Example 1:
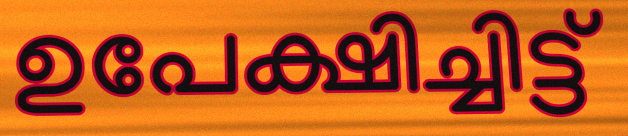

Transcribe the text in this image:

ഉപേക്ഷിച്ചിട്ട്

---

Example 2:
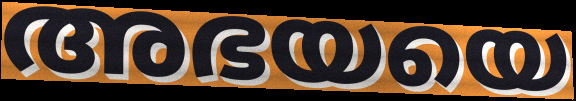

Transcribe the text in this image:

അഭയയെ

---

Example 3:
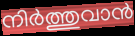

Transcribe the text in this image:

നിർത്തുവാൻ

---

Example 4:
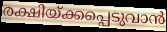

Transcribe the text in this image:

രക്ഷിയ്ക്കപ്പെടുവാൻ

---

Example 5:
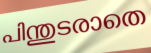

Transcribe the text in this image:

പിന്തുടരാതെ